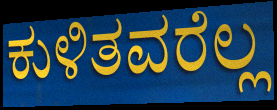
ಕುಳಿತವರೆಲ್ಲ